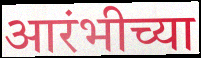
आरंभीच्या